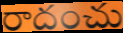
రాదంచు